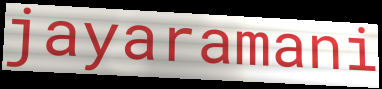
jayaramani